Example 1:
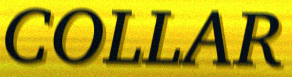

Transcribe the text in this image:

COLLAR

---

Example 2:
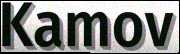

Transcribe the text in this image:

Kamov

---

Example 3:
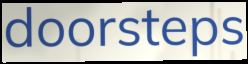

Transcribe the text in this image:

doorsteps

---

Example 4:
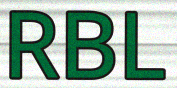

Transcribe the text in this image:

RBL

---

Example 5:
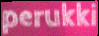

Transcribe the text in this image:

perukki